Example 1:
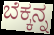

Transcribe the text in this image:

ಬೆಕ್ಕನ್ನ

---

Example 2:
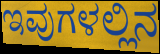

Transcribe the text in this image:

ಇವುಗಳಲ್ಲಿನ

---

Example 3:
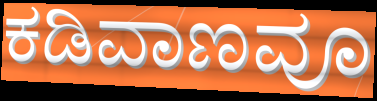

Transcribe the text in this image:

ಕಡಿವಾಣವೂ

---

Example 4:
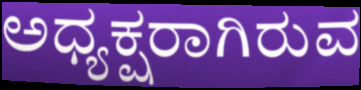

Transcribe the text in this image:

ಅಧ್ಯಕ್ಷರಾಗಿರುವ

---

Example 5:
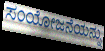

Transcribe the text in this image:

ಸಂಯೋಜನೆಯನ್ನು